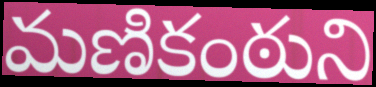
మణికంఠుని